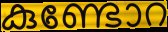
കുണ്ടോറ